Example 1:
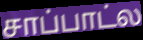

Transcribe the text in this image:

சாப்பாட்ல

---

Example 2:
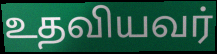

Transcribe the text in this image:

உதவியவர்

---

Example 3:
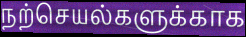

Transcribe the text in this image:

நற்செயல்களுக்காக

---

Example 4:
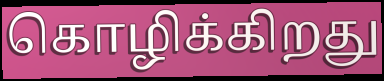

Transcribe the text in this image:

கொழிக்கிறது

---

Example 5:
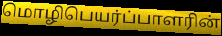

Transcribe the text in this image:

மொழிபெயர்ப்பாளரின்